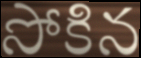
సోకిన